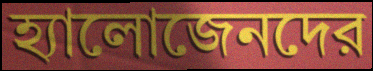
হ্যালোজেনদের